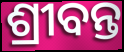
ଶ୍ରୀବନ୍ତ